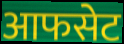
आफसेट